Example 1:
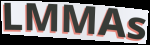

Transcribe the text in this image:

LMMAs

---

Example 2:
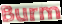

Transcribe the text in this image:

Burm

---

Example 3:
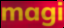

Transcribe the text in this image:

magi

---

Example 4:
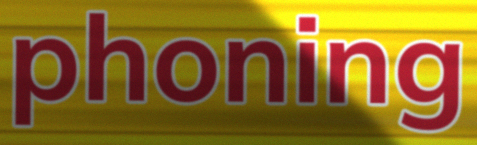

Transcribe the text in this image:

phoning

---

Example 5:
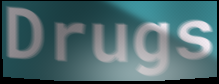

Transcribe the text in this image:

Drugs